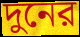
দুনের